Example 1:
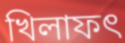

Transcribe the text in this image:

খিলাফৎ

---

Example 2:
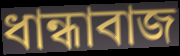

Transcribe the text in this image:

ধান্ধাবাজ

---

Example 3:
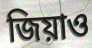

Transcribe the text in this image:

জিয়াও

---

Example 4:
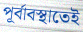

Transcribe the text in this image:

পূর্বাবস্থাতেই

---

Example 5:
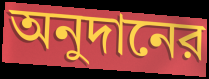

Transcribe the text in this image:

অনুদানের